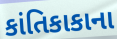
કાંતિકાકાના